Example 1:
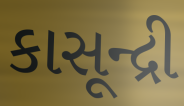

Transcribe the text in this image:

કાસૂન્દ્રી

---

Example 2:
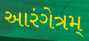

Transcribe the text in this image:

આરંગેત્રમ્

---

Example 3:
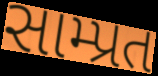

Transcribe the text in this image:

સામ્પ્રત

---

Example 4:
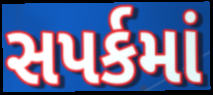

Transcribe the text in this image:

સપર્કમાં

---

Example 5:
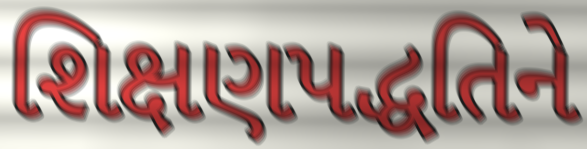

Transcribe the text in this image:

શિક્ષણપદ્ધતિને